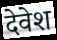
देवेश